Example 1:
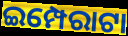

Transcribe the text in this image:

ଇମ୍ପେରାଟା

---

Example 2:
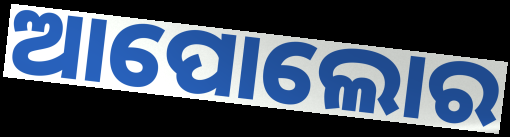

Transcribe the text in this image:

ଆପୋଲୋର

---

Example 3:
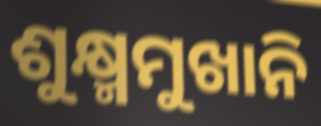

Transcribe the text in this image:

ଶୁକ୍ଷ୍ମମୁଖାନି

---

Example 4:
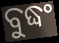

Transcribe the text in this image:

ବୁଦ୍ଧଂ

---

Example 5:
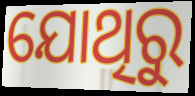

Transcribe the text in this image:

ଯୋଥିରୁ